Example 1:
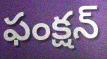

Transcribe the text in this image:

ఫంక్షన్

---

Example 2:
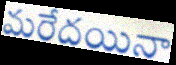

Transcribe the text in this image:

మరేదయినా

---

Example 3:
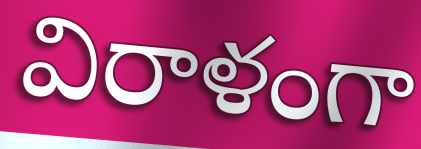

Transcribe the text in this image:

విరాళంగా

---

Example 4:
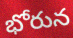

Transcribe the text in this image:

భోరున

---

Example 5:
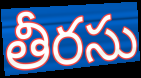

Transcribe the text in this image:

తీరసు